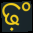
ଢ଼ଂ